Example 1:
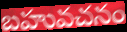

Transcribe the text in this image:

బహువచనం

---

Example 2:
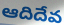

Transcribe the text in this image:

ఆదిదేవ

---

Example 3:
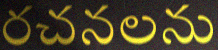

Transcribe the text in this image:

రచనలను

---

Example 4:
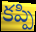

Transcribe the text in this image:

కప్పి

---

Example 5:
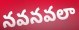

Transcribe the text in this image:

నవనవలా